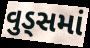
વુડ્સમાં